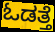
ಓಡತ್ತೆ